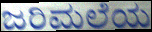
ಜರಿಮಲೆಯ